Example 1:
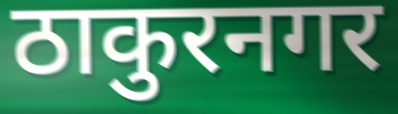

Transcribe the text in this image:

ठाकुरनगर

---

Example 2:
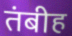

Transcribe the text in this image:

तंबीह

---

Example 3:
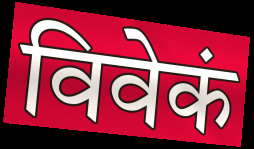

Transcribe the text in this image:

विवेकं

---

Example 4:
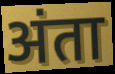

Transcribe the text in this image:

अंता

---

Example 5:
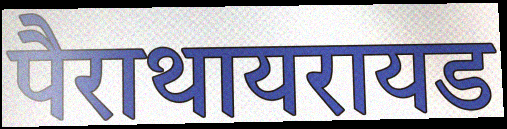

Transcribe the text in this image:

पैराथायरायड